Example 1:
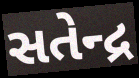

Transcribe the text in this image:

સતેન્દ્ર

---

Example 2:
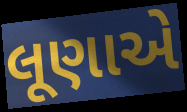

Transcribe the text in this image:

લૂણાએ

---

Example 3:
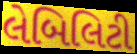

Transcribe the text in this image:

લેબિલિટી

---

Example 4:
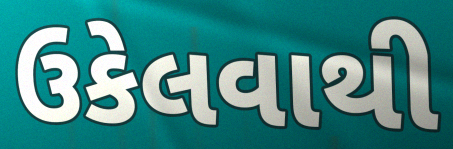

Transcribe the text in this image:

ઉકેલવાથી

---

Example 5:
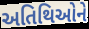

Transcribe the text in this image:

અતિથિઓને